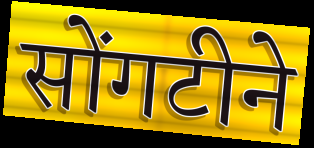
सोंगटीने